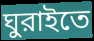
ঘুরাইতে